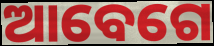
ଆବେଗେ